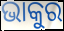
ଭାକୁର